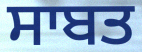
ਸਾਬਤ